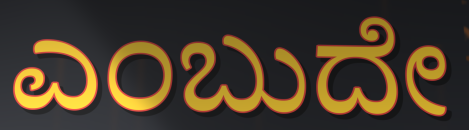
ಎಂಬುದೇ